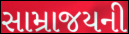
સામ્રાજયની